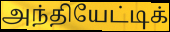
அந்தியேட்டிக்